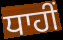
ਧਾਹੀਂ